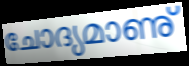
ചോദ്യമാണു്